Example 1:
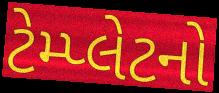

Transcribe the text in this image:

ટેમ્પ્લેટનો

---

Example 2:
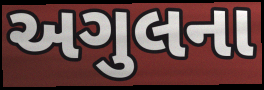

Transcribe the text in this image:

અગુલના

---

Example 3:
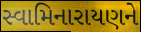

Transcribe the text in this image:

સ્વામિનારાયણને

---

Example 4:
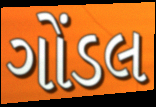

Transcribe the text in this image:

ગોંડલ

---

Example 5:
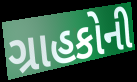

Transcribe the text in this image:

ગ્રાહકોની